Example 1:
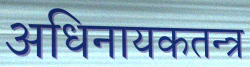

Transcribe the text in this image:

अधिनायकतन्त्र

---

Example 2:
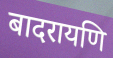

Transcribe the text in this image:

बादरायणि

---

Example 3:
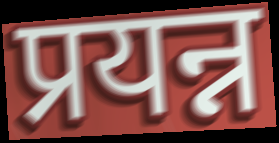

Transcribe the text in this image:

प्रयन्न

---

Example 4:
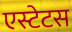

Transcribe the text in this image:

एस्टेटस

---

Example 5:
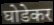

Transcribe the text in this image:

घोडेकर